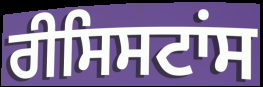
ਰੀਸਿਸਟਾਂਸ